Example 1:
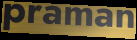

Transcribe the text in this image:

praman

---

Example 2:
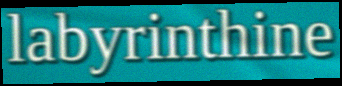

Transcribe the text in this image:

labyrinthine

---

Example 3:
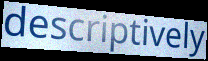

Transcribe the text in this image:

descriptively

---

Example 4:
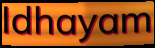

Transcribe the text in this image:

Idhayam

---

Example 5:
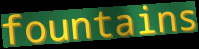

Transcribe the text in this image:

fountains